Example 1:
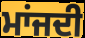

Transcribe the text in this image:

ਮਾਂਜਦੀ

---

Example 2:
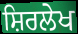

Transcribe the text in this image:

ਸ਼ਿਰਲੇਖ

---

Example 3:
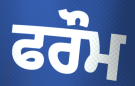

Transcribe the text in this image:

ਫਰੌਮ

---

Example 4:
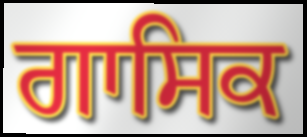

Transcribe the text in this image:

ਗਾਸਿਕ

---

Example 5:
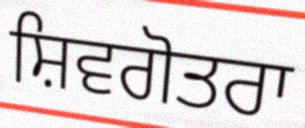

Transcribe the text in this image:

ਸ਼ਿਵਗੋਤਰਾ